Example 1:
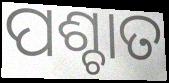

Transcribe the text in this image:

ପଶ୍ଚାତ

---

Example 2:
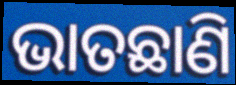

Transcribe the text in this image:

ଭାତଛାଣି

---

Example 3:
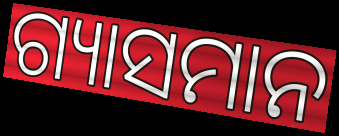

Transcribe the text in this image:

ଗ୍ୟାସମାନ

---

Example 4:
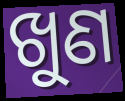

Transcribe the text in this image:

ଖୁଣ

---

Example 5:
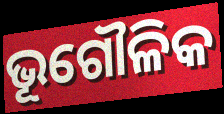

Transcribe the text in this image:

ଭୂଗୌଳିକ